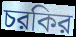
চরকির